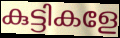
കുട്ടികളേ